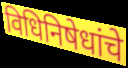
विधिनिषेधांचे